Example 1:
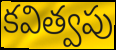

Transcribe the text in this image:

కవిత్వపు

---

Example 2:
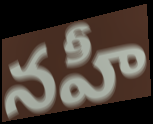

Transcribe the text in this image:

నహీ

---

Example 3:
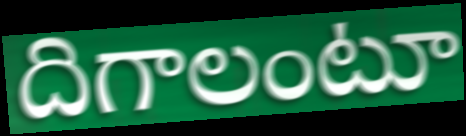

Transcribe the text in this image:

దిగాలంటూ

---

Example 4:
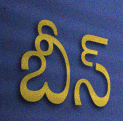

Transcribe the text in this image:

బీస్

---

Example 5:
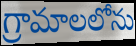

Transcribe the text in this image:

గ్రామాలలోను